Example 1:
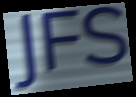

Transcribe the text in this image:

JFS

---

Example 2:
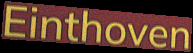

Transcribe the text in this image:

Einthoven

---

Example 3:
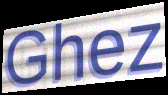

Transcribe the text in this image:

Ghez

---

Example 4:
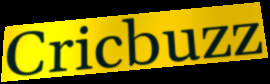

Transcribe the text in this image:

Cricbuzz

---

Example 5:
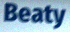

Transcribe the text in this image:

Beaty